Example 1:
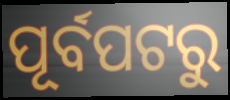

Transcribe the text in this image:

ପୂର୍ବପଟରୁ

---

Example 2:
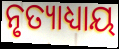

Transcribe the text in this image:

ନୃତ୍ୟାଧ୍ୟାୟ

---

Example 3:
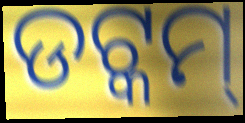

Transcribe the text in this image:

ଡଟ୍କମ୍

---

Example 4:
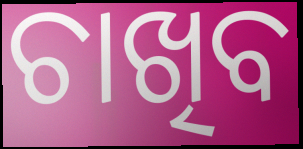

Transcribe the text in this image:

ଚାଖିବ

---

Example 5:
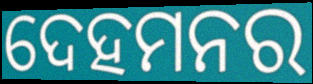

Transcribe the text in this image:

ଦେହମନର